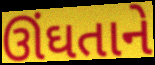
ઊંઘતાને